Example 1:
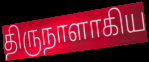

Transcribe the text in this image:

திருநாளாகிய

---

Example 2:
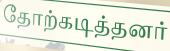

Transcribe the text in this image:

தோற்கடித்தனர்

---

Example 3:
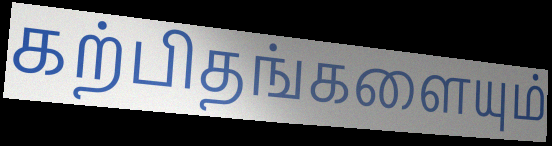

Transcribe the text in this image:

கற்பிதங்களையும்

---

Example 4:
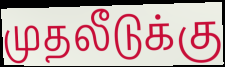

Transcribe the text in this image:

முதலீடுக்கு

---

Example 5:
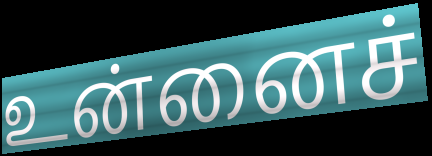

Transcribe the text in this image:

உன்னைச்